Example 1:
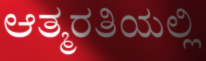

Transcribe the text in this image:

ಆತ್ಮರತಿಯಲ್ಲಿ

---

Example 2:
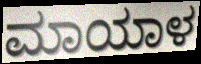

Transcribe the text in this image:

ಮಾಯಾಳ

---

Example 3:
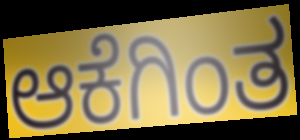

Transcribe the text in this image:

ಆಕೆಗಿಂತ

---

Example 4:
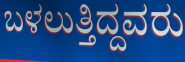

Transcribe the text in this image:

ಬಳಲುತ್ತಿದ್ದವರು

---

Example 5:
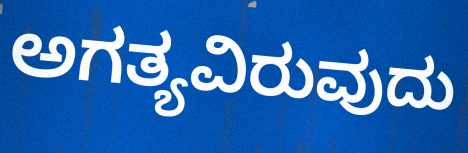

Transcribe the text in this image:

ಅಗತ್ಯವಿರುವುದು